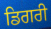
ਡਿਗਰੀ